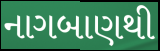
નાગબાણથી